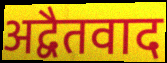
अद्वैतवाद